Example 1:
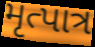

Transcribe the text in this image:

મૃત્પાત્ર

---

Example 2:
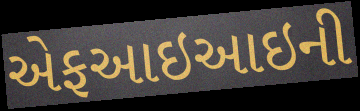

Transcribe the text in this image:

એફઆઇઆઇની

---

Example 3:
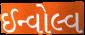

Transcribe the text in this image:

ઈન્વોલ્વ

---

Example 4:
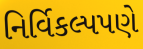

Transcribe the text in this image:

નિર્વિકલ્પપણે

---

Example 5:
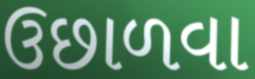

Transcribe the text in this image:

ઉછાળવા